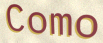
Como